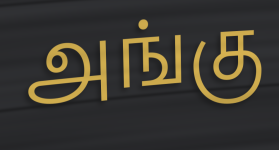
அங்கு